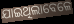
ଯାଇଥିଲାବେଳେ